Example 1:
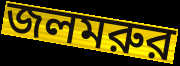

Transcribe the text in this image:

জলমরুর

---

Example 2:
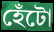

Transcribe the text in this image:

হেঁটো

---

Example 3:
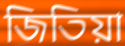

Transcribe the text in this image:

জিতিয়া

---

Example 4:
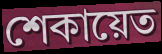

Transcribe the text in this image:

শেকায়েত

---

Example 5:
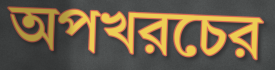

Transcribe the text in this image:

অপখরচের